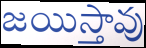
జయిస్తావు